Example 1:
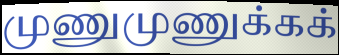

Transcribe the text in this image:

முணுமுணுக்கக்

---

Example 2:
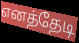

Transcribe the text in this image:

எனத்தேடி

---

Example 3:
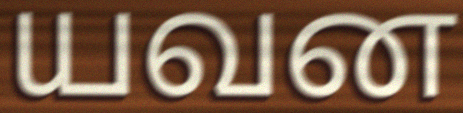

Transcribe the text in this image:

யவன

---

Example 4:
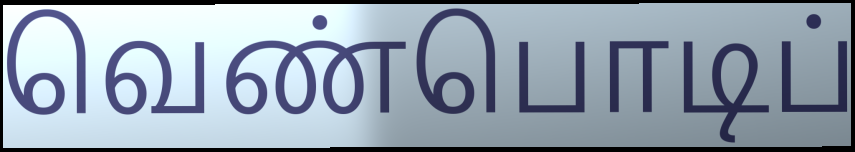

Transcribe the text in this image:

வெண்பொடிப்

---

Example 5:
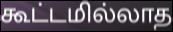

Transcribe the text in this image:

கூட்டமில்லாத